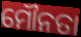
ମୌନତା